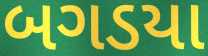
બગડયા